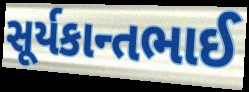
સૂર્યકાન્તભાઈ